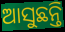
ଆସୁଛନ୍ତି